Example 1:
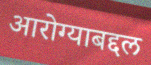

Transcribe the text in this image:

आरोग्याबद्दल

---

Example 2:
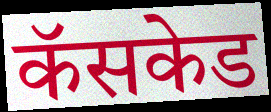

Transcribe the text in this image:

कॅसकेड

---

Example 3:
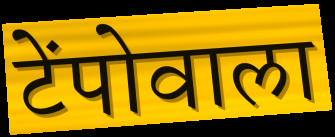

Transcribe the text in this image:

टेंपोवाला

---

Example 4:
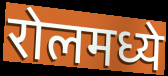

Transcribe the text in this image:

रोलमध्ये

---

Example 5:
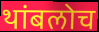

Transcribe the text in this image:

थांबलोच